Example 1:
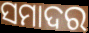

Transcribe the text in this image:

ସମାଦର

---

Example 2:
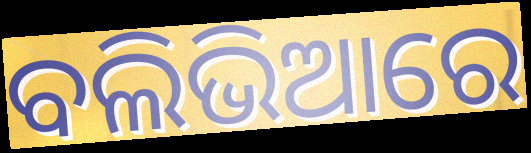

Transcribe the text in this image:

ବଲିଭିଆରେ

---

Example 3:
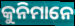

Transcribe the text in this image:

କୁନିମାନେ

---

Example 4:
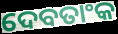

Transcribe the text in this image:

ଦେବତାଂକ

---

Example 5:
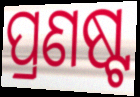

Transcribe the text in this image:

ପ୍ରଣଷ୍ଟ